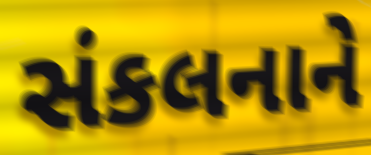
સંકલનાને